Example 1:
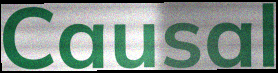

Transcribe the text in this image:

Causal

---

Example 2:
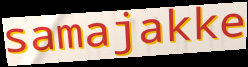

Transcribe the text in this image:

samajakke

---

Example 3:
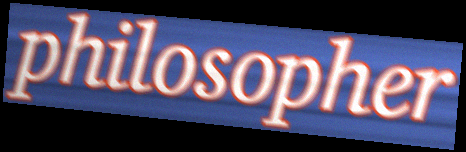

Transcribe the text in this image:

philosopher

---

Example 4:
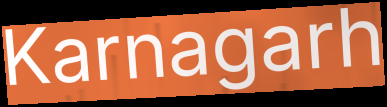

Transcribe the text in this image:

Karnagarh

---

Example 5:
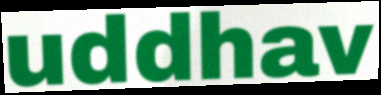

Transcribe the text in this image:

uddhav